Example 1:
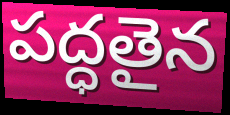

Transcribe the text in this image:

పద్ధతైన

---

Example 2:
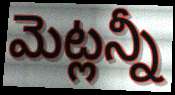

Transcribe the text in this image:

మెట్లన్నీ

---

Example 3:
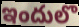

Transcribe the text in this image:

ఇందులొ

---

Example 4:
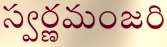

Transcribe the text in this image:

స్వర్ణమంజరి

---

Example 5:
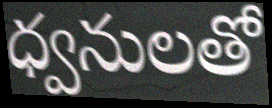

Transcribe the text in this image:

ధ్వనులతో